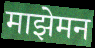
माझेमन